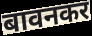
बावनकर